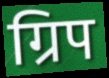
ग्रिप